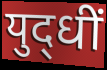
युद्धीं